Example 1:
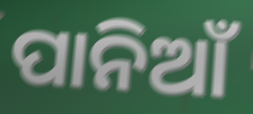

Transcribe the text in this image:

ପାନିଆଁ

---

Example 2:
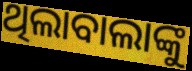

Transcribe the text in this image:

ଥିଲାବାଲାଙ୍କୁ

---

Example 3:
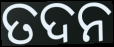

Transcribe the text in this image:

ତଦନ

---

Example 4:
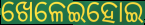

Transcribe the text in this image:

ଖେଳେଇହୋଇ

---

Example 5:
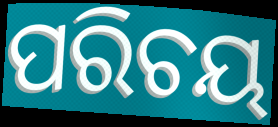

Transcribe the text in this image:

ପରିଚୟ